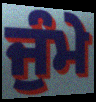
ਜੁੰਮੇ